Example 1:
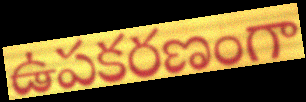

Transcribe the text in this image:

ఉపకరణంగా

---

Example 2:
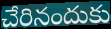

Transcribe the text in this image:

చేరినందుకు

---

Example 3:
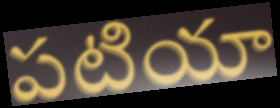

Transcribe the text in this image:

పటియా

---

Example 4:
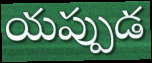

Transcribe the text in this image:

యప్పుడ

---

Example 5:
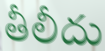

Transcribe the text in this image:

తీలీదు